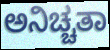
ಅನಿಚ್ಚತಾ